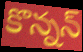
కొన్నన్